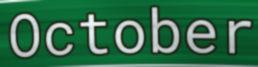
October